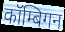
कॉम्बिगन